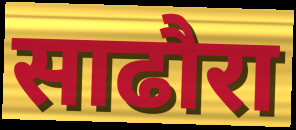
साढौरा